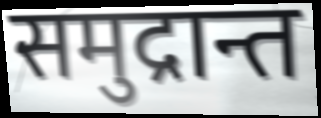
समुद्रान्त